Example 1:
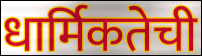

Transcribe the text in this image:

धार्मिकतेची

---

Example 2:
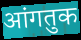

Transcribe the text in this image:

आंगतुक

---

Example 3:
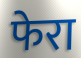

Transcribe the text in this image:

फेरा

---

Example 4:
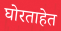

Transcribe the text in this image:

घोरताहेत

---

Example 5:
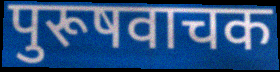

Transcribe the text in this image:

पुरूषवाचक